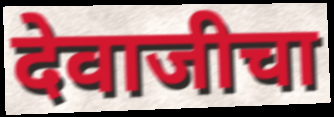
देवाजीचा